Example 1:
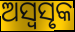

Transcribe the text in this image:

ଅସ୍ୱସୃକ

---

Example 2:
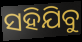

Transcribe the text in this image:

ସହିଯିବୁ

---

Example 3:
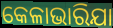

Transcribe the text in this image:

କେଳାଭାରିଯା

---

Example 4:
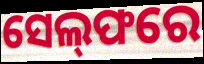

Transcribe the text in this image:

ସେଲ୍‌ଫରେ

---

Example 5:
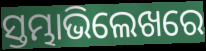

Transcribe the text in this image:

ସ୍ତମ୍ଭାଭିଲେଖରେ